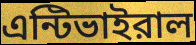
এন্টিভাইরাল